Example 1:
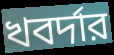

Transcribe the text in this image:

খবর্দার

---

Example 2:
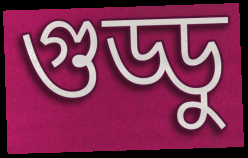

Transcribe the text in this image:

গুড্ডু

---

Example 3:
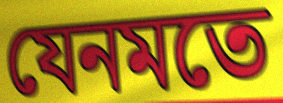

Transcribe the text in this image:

যেনমতে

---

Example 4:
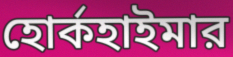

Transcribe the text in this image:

হোর্কহাইমার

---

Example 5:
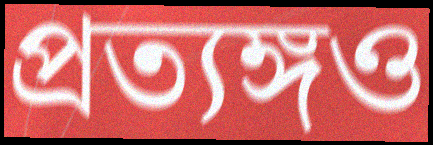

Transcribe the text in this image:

প্রত্যঙ্গও